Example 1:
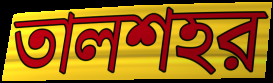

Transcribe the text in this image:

তালশহর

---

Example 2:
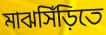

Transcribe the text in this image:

মাঝসিঁড়িতে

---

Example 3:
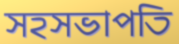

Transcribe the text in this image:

সহসভাপতি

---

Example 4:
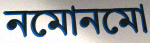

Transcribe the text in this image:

নমোনমো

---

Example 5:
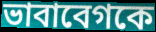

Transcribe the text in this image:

ভাবাবেগকে